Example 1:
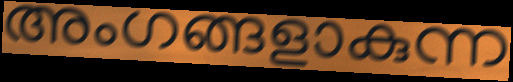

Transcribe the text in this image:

അംഗങ്ങളാകുന്ന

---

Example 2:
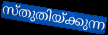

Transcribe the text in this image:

സ്തുതിയ്ക്കുന്ന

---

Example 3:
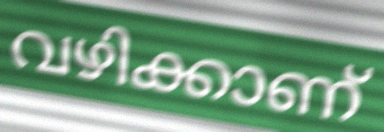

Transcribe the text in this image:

വഴിക്കാണ്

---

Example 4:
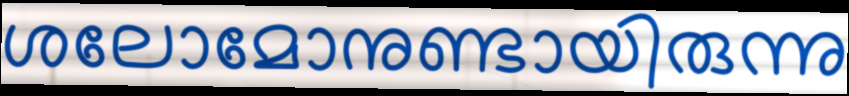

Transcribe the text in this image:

ശലോമോനുണ്ടായിരുന്നു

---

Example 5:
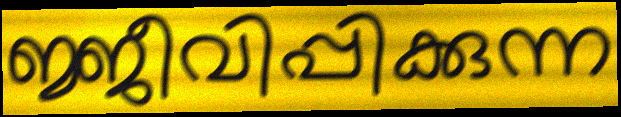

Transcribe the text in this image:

ജ്ജീവിപ്പിക്കുന്ന